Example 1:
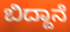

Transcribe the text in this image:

ಬಿದ್ದಾನೆ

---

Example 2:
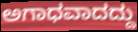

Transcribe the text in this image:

ಅಗಾಧವಾದದ್ದು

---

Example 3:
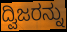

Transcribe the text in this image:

ದ್ವಿಜರನ್ನು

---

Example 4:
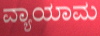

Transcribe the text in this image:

ವ್ಯಾಯಾಮ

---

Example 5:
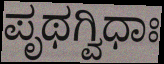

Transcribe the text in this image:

ಪೃಥಗ್ವಿಧಾಃ